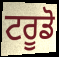
ਟਰੂਡੋ